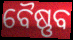
ବୈଷ୍ଣବ